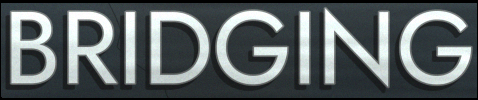
BRIDGING